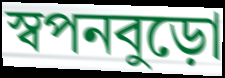
স্বপনবুড়ো